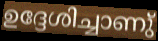
ഉദ്ദേശിച്ചാണു്